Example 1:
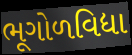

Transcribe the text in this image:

ભૂગોળવિદ્યા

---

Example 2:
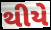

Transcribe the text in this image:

થીયે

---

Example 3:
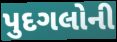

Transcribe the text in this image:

પુદગલોની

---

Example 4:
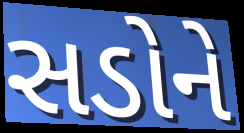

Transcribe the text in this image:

સડોને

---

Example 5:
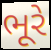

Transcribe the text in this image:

ભૂરે